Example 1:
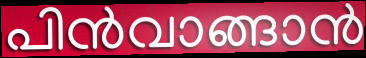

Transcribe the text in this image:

പിൻവാങ്ങാൻ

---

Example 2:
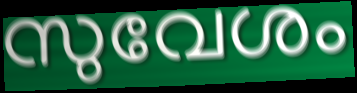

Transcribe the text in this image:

സുവേശം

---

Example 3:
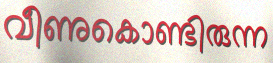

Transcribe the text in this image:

വീണുകൊണ്ടിരുന്ന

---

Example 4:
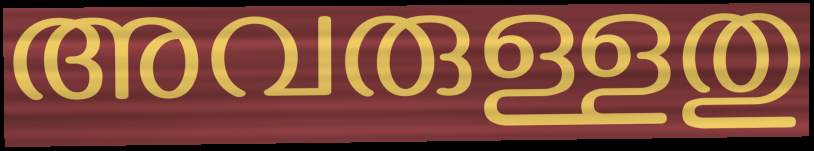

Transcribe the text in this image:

അവരുള്ളതു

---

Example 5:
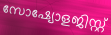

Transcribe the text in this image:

സോഷ്യോളജിസ്റ്റ്